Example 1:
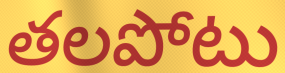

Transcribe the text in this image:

తలపోటు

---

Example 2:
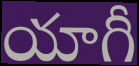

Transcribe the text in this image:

యాగీ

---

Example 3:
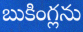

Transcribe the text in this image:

బుకింగ్లను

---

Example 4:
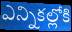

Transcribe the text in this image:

ఎన్నికల్లోకి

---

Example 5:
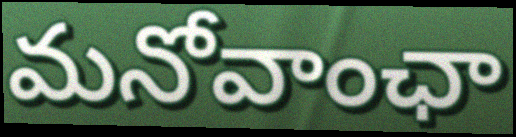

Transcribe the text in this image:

మనోవాంఛా